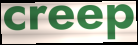
creep